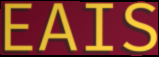
EAIS